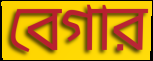
বেগার